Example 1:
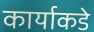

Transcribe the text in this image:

कार्याकडे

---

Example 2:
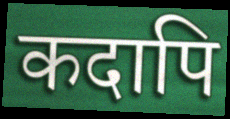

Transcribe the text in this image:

कदापि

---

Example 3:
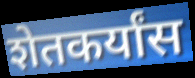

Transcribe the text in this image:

शेतकर्यांस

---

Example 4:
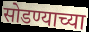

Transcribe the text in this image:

सोडण्याच्या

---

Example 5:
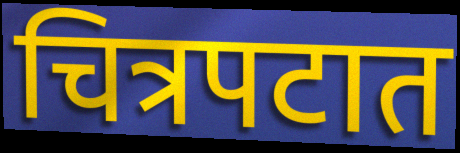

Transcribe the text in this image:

चित्रपटात